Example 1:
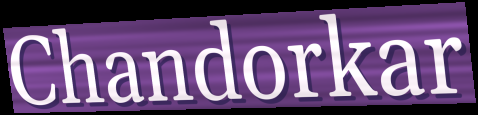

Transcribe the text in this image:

Chandorkar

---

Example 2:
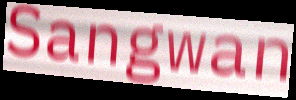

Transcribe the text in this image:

Sangwan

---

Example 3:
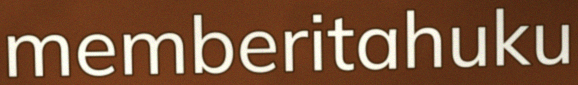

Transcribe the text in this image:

memberitahuku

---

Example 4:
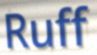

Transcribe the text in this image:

Ruff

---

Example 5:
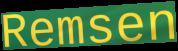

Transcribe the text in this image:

Remsen